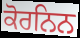
ਕੋਰਨਿਨ